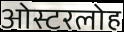
ओस्टरलोह